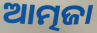
ଆତ୍ମଜା